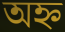
অহ্ন